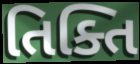
તિક્તિ